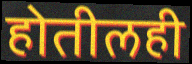
होतीलही